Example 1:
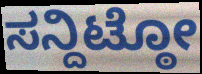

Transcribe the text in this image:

ಸನ್ದಿಟ್ಠೋ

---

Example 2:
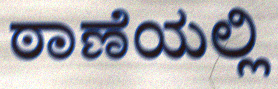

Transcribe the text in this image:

ಠಾಣೆಯಲ್ಲಿ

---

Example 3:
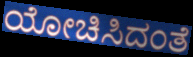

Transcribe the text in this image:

ಯೋಚಿಸಿದಂತೆ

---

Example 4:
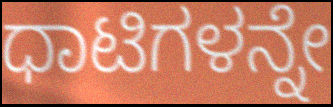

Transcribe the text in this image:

ಧಾಟಿಗಳನ್ನೇ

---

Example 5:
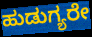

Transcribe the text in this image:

ಹುಡುಗ್ಯರೇ